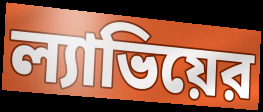
ল্যাভিয়ের